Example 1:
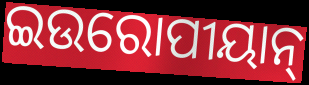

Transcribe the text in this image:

ଇଉରୋପୀୟାନ୍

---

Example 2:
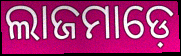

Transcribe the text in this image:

ଲାଜମାଡ଼େ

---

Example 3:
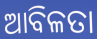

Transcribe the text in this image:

ଆବିଳତା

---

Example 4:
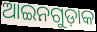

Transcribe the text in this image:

ଆଇନଗୁଡ଼ାକ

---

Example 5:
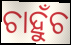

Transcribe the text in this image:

ଚାହୁଁଚ